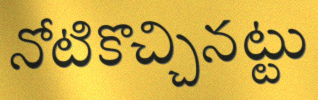
నోటికొచ్చినట్టు